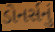
ડોનર્સનું